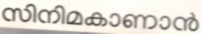
സിനിമകാണാൻ